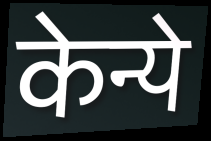
केन्ये